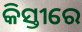
କିସ୍ତୀରେ